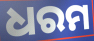
ଧରମ